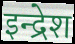
इन्द्रेश